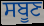
ਸਬੂਣ